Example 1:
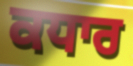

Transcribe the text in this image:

ਕਧਾਰ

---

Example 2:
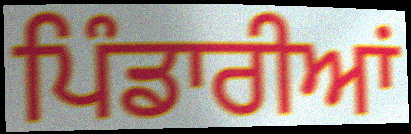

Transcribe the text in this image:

ਪਿੰਡਾਰੀਆਂ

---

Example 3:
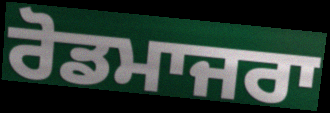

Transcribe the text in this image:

ਰੋਡਮਾਜਰਾ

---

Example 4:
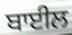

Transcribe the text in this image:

ਬਾਈਲ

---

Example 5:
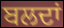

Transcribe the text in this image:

ਬਲਦਾਂ